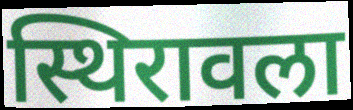
स्थिरावला